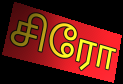
சிரோ